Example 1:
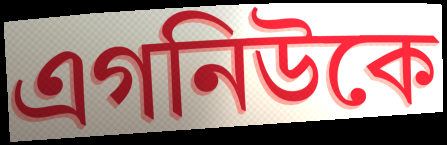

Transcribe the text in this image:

এগনিউকে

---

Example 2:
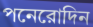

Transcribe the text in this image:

পনেরোদিন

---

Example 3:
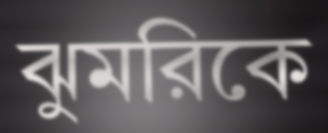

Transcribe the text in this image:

ঝুমরিকে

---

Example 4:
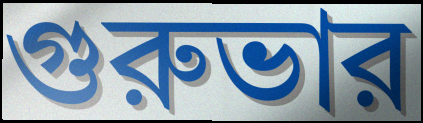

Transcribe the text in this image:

গুরুভার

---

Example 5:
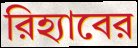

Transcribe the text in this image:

রিহ্যাবের